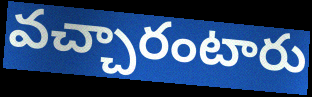
వచ్చారంటారు